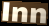
Inn